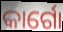
କାର୍ଗୋ